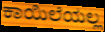
ಕಾಯಿಲೆಯಲ್ಲ